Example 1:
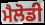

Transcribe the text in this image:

ਮੈਲੋਡੀ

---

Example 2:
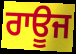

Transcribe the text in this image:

ਰਾਊਜ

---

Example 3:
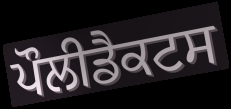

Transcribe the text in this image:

ਪੌਲੀਡੈਕਟਸ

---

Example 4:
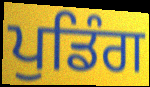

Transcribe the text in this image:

ਪੁਡਿੰਗ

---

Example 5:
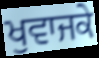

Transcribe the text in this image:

ਖੁਵਾਜਕੇ